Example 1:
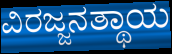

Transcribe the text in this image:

ವಿರಜ್ಜನತ್ಥಾಯ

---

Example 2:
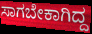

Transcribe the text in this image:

ಸಾಗಬೇಕಾಗಿದ್ದ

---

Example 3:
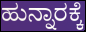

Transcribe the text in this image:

ಹುನ್ನಾರಕ್ಕೆ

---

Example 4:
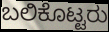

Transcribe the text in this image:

ಬಲಿಕೊಟ್ಟರು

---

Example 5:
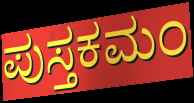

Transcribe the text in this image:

ಪುಸ್ತಕಮಂ